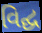
વિદ્ઘ